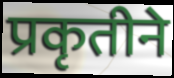
प्रकृतीने